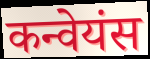
कन्वेयंस